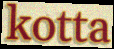
kotta